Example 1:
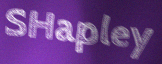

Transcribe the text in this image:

SHapley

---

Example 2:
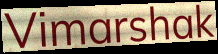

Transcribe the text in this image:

Vimarshak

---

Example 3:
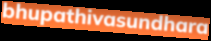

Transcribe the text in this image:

bhupathivasundhara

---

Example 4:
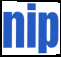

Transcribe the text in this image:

nip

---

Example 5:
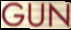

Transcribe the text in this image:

GUN